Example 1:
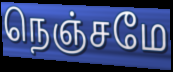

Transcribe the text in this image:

நெஞ்சமே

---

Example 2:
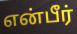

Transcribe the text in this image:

என்பீர்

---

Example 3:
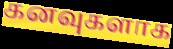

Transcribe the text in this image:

கனவுகளாக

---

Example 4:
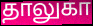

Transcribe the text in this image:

தாலுகா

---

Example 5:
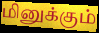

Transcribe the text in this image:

மினுக்கும்